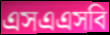
এসএএসবি